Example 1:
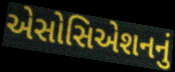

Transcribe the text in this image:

એસોસિએશનનું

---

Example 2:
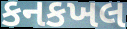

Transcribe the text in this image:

કનકખલ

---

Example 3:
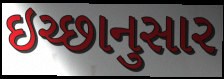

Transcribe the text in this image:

ઇચ્છાનુસાર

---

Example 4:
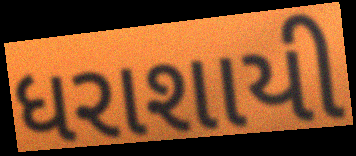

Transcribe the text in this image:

ધરાશાયી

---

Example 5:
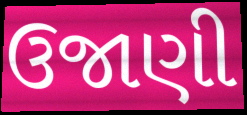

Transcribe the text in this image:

ઉજાણી